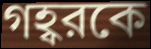
গহ্বরকে